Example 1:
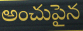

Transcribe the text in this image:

అంచుపైన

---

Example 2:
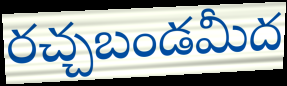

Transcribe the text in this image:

రచ్చబండమీద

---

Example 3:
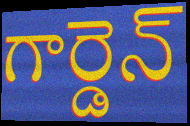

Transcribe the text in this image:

గార్డెన్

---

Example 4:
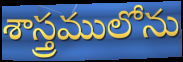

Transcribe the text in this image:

శాస్త్రములోను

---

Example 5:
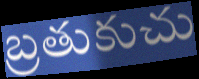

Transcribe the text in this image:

బ్రతుకుచు